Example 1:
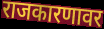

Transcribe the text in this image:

राजकारणावर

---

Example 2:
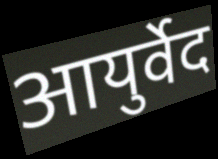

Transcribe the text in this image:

आयुर्वेद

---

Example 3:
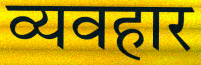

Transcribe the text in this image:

व्यवहार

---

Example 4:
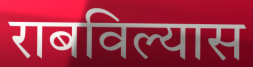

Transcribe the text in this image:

राबविल्यास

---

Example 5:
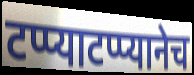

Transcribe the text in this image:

टप्प्याटप्प्यानेच